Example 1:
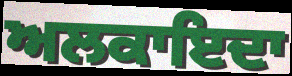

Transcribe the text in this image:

ਅਲਕਾਇਦਾ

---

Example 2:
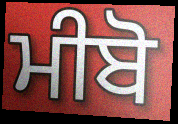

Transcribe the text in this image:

ਮੀਬੋ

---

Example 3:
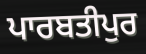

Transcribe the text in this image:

ਪਾਰਬਤੀਪੁਰ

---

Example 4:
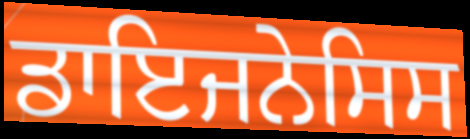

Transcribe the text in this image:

ਡਾਇਜਨੇਸਿਸ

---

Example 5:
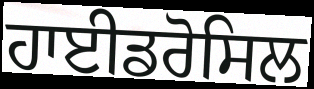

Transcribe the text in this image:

ਹਾਈਡਰੋਸਿਲ